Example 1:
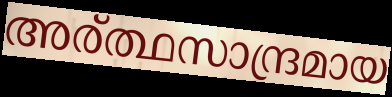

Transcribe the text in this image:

അര്ത്ഥസാന്ദ്രമായ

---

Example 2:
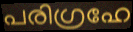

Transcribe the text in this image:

പരിഗ്രഹേ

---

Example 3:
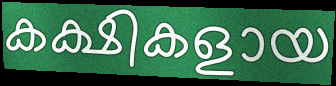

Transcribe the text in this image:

കക്ഷികളായ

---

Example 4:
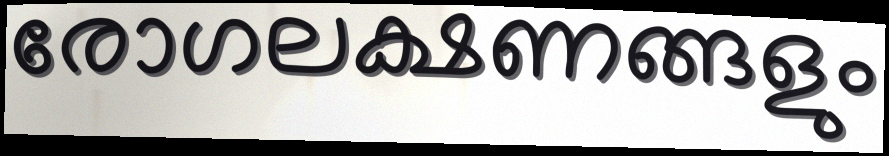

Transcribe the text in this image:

രോഗലക്ഷണങ്ങളും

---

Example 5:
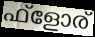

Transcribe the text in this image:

ഫ്ളോര്